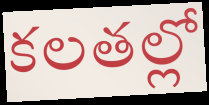
కలతల్లో